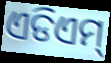
ଏଡିଏମ୍